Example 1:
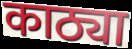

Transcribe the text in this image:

काठ्या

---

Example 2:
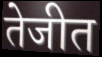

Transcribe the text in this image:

तेजीत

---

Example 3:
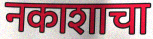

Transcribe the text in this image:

नकाशाचा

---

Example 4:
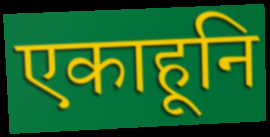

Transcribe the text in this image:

एकाहूनि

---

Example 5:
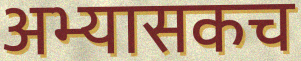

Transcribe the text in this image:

अभ्यासकच